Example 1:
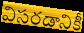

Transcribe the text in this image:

విసరడానికీ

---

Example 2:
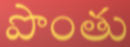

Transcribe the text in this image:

పొంతు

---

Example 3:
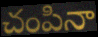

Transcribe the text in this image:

చంపినా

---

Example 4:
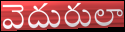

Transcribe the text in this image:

వెదురులా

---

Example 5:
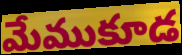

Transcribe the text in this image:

మేముకూడ